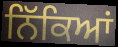
ਨਿੱਕਿਆਂ